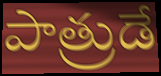
పాత్రుడే